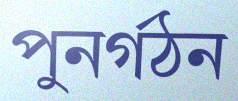
পুনৰ্গঠন